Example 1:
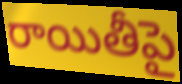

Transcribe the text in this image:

రాయితీపై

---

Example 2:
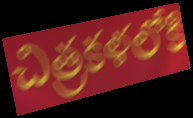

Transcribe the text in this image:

చిత్రకళలోకి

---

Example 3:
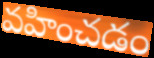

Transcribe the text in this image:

వహించడం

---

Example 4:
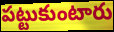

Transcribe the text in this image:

పట్టుకుంటారు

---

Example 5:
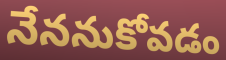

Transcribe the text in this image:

నేననుకోవడం